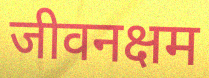
जीवनक्षम